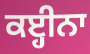
ਕੲ੍ਹੀਨਾ